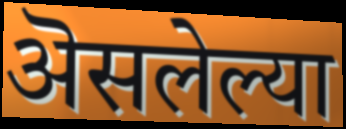
ऄसलेल्या